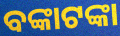
ବଙ୍କାଟଙ୍କା